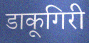
डाकूगिरी